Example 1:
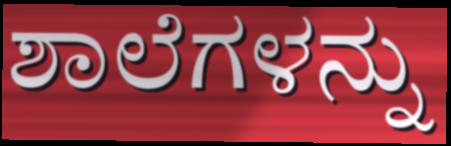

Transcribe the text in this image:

ಶಾಲೆಗಳನ್ನು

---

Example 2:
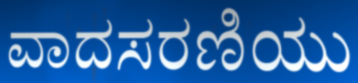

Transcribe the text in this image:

ವಾದಸರಣಿಯು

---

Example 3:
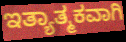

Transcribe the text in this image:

ಇತ್ಯಾತ್ಮಕವಾಗಿ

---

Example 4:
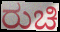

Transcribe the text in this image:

ರುಚಿ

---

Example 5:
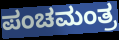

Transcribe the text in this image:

ಪಂಚಮಂತ್ರ